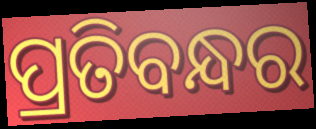
ପ୍ରତିବନ୍ଧର